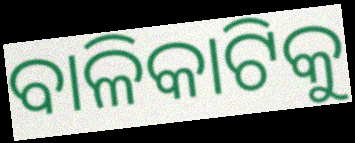
ବାଳିକାଟିକୁ